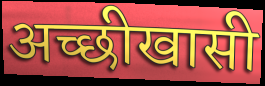
अच्छीखासी